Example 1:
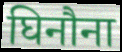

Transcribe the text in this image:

घिनौना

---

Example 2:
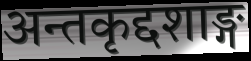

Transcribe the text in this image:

अन्तकृद्दशाङ्ग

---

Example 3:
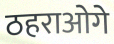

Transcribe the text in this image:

ठहराओगे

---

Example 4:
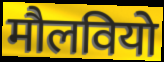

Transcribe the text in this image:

मौलवियो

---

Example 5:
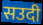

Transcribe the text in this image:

सउदी